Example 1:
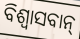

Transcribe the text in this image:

ବିଶ୍ଵାସବାନ୍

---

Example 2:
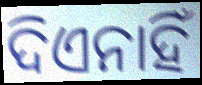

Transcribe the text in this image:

ଦିଏନାହିଁ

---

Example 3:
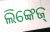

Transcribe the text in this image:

ଲିଙ୍କେଜ୍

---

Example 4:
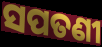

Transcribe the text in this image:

ସପତଣୀ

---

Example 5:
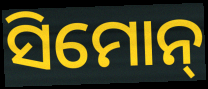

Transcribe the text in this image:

ସିମୋନ୍